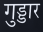
गुड्डार